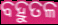
ବହୁତଳ